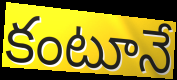
కంటూనే